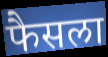
फैसला